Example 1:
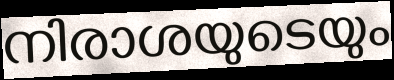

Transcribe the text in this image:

നിരാശയുടെയും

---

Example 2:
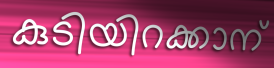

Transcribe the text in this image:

കുടിയിറക്കാന്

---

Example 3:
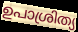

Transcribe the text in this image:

ഉപാശ്രിത്യ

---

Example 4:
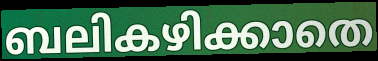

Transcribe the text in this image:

ബലികഴിക്കാതെ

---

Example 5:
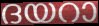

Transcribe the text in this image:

ദയറാ